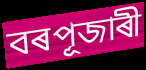
বৰপূজাৰী